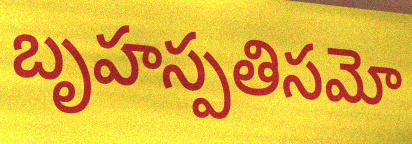
బృహస్పతిసమో